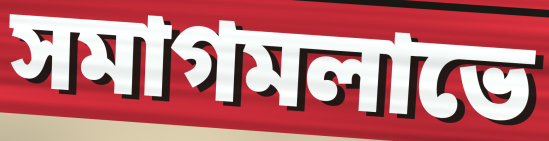
সমাগমলাভে